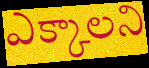
ఎక్కాలని